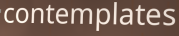
contemplates